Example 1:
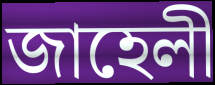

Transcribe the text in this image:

জাহেলী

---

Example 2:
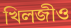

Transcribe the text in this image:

খিলজীও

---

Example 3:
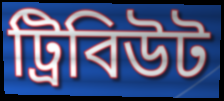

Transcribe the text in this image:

ট্রিবিউট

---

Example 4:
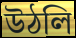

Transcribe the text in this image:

উঠলি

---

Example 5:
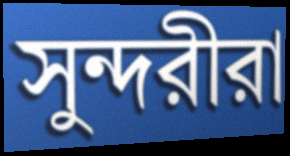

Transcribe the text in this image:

সুন্দরীরা